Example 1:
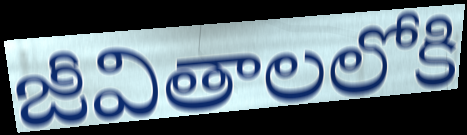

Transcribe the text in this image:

జీవితాలలోకి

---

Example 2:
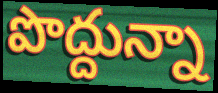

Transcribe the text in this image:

పొద్దున్నా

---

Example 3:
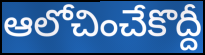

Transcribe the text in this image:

ఆలోచించేకొద్దీ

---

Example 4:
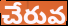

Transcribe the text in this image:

చేరువ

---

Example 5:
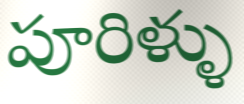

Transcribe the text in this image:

పూరిళ్ళు